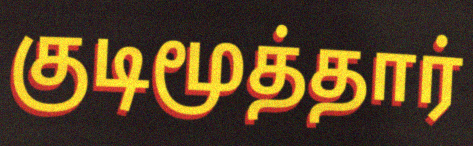
குடிமூத்தார்